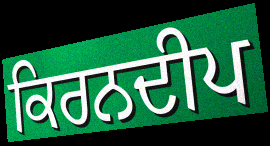
ਕਿਰਨਦੀਪ